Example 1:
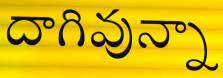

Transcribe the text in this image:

దాగివున్నా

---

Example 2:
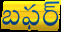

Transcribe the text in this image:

బఫర్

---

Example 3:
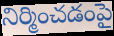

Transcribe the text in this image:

నిర్మించడంపై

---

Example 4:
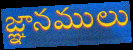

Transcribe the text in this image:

జ్ఞానములు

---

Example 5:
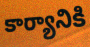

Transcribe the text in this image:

కార్యానికి